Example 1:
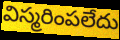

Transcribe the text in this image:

విస్మరింపలేదు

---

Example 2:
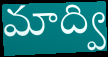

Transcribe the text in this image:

మాద్వి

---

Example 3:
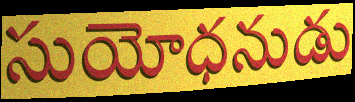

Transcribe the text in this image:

సుయోధనుడు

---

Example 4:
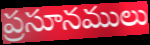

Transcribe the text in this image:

ప్రసూనములు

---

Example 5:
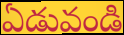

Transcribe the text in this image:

ఏడువండి